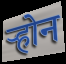
र्‍होन